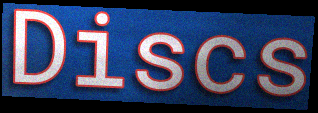
Discs